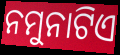
ନମୁନାଟିଏ